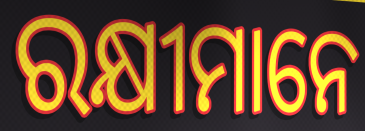
ରକ୍ଷୀମାନେ